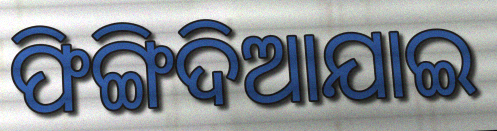
ଫିଙ୍ଗିଦିଆଯାଇ